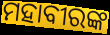
ମହାବୀରଙ୍କ